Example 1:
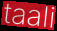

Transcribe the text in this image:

taali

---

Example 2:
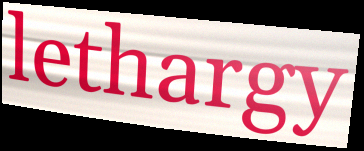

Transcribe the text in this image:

lethargy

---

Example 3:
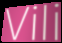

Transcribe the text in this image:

Vili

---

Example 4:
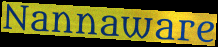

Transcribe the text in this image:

Nannaware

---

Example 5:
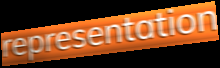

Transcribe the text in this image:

representation